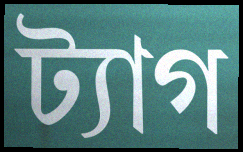
ট্যাগ